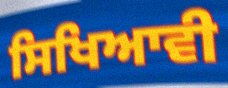
ਸਿਖਿਆਵੀ